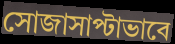
সোজাসাপ্টাভাবে